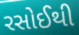
રસોઈથી